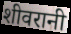
शीवरानी